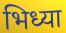
भिध्या